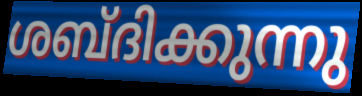
ശബ്ദിക്കുന്നു